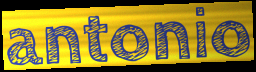
antonio